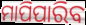
ମାପିପାରିବ